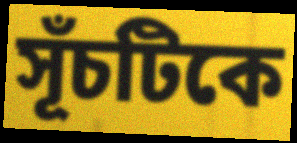
সূঁচটিকে